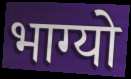
भाग्यो